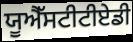
ਯੂਐੱਸਟੀਟੀਏਡੀ